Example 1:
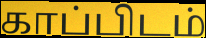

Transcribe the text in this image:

காப்பிடம்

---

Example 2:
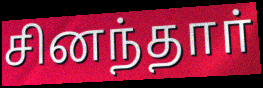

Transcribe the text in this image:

சினந்தார்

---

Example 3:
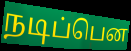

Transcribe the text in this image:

நடிப்பென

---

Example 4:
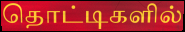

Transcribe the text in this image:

தொட்டிகளில்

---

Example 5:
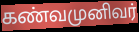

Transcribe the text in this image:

கண்வமுனிவர்